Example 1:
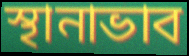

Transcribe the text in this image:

স্থানাভাব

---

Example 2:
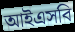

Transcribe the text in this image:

আইএসবি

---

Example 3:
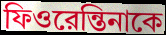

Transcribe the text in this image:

ফিওরেন্তিনাকে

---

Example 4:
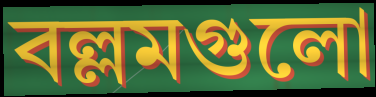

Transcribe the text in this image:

বল্লমগুলো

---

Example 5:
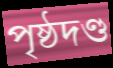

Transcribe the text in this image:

পৃষ্ঠদণ্ড